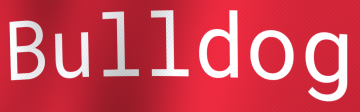
Bulldog